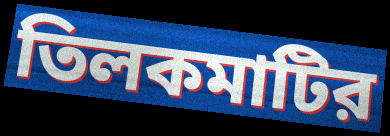
তিলকমাটির